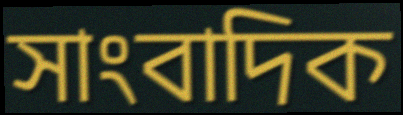
সাংবাদিক